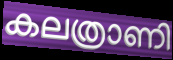
കലത്രാണി